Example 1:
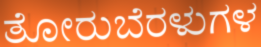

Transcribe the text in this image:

ತೋರುಬೆರಳುಗಳ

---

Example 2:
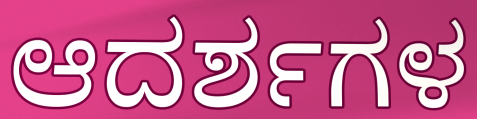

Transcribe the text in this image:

ಆದರ್ಶಗಳ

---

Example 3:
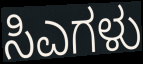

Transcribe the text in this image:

ಸಿಎಗಳು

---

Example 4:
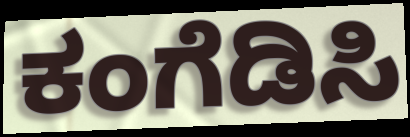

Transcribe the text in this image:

ಕಂಗೆಡಿಸಿ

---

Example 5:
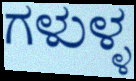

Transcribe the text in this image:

ಗಳುಳ್ಳ